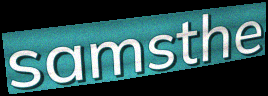
samsthe